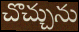
చొచ్చును